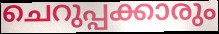
ചെറുപ്പക്കാരും